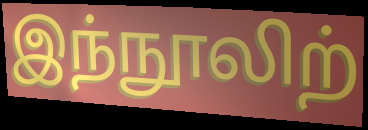
இந்நூலிற்